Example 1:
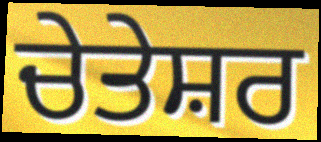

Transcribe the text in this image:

ਚੇਤੇਸ਼ਰ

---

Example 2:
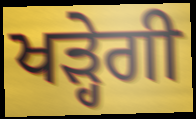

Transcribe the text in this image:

ਖੜ੍ਹੇਗੀ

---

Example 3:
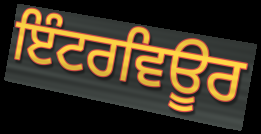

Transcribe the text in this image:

ਇੰਟਰਵਿਊਰ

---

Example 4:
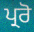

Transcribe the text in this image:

ਪ੍ਰਰੋ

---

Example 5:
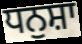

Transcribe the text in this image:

ਧਨੁਸ਼ਾ